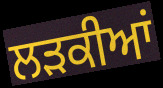
ਲੜਕੀਆਂ